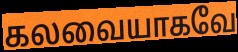
கலவையாகவே